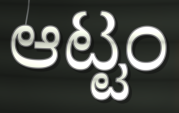
ಆಟ್ಟಂ